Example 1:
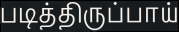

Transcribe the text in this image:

படித்திருப்பாய்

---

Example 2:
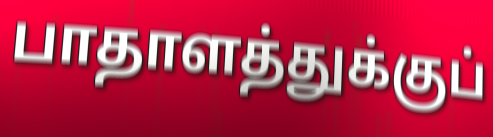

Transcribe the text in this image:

பாதாளத்துக்குப்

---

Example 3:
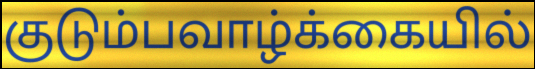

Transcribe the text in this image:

குடும்பவாழ்க்கையில்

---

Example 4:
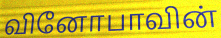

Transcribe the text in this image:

வினோபாவின்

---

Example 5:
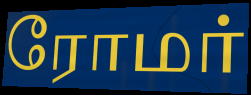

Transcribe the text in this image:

ரோமர்